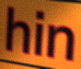
hin